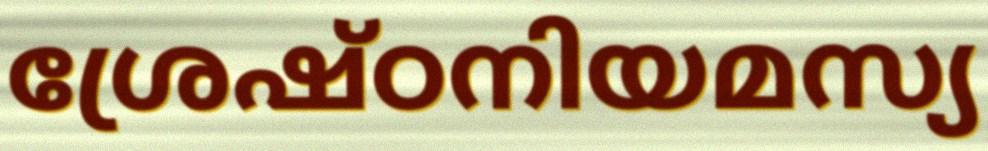
ശ്രേഷ്ഠനിയമസ്യ